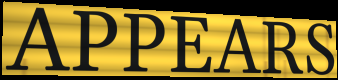
APPEARS